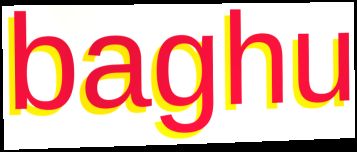
baghu